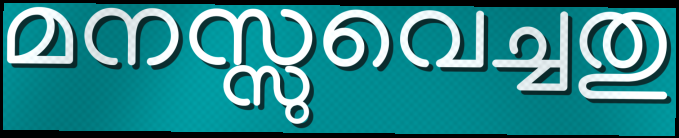
മനസ്സുവെച്ചതു